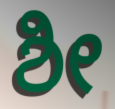
ಶೀ